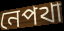
নেপথা